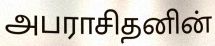
அபராசிதனின்